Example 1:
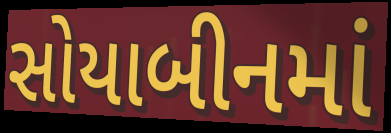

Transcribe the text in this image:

સોયાબીનમાં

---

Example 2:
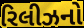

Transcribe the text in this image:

રિલીઝનો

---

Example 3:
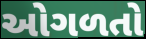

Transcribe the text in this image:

ઓગળતો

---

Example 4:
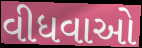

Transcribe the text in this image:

વીધવાઓ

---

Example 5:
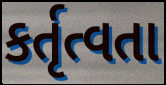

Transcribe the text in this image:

કર્તૃત્વતા